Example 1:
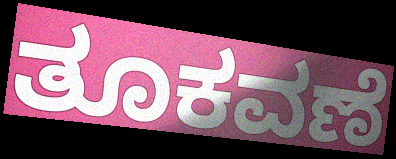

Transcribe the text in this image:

ತೂಕವಣೆ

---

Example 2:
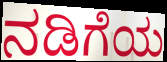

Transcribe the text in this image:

ನಡಿಗೆಯ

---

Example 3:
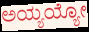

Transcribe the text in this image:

ಅಯ್ಯಯ್ಯೋ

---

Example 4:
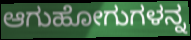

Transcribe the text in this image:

ಆಗುಹೋಗುಗಳನ್ನ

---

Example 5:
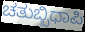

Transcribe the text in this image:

ಚತುಬ್ಬಿಧಾಪಿ